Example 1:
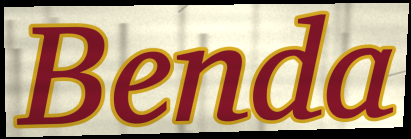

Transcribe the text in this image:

Benda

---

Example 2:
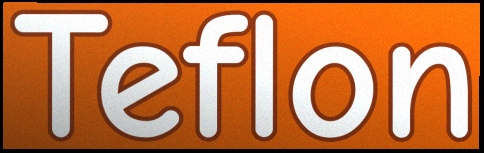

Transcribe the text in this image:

Teflon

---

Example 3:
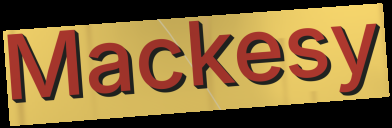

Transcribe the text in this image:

Mackesy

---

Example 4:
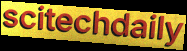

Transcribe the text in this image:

scitechdaily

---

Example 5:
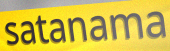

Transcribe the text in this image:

satanama